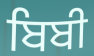
ਬਿਬੀ